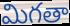
మిగతా